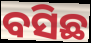
ବସିଛ